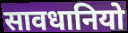
सावधानियो